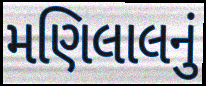
મણિલાલનું